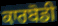
ਕਾਰਬੋਡੀ